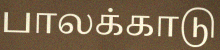
பாலக்காடு